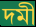
দমী